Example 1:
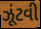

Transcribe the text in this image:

ઝૂંટવી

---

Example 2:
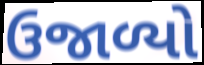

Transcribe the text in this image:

ઉજાળ્યો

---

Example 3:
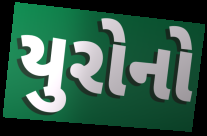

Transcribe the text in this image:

યુરોનો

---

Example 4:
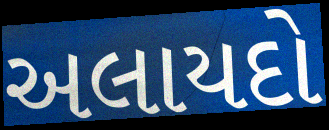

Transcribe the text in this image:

અલાયદો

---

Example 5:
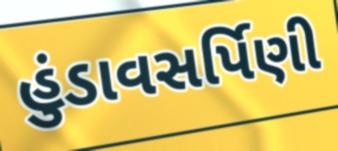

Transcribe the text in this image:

હુંડાવસર્પિણી